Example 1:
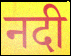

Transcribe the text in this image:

नदी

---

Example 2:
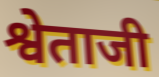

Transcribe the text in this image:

श्वेताजी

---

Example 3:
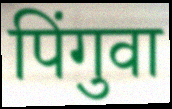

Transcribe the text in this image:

पिंगुवा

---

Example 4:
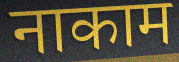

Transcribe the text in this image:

नाकाम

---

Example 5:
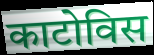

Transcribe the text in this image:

काटोविस